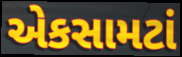
એકસામટાં